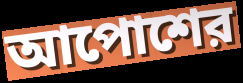
আপোশের